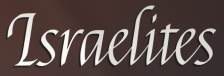
Israelites